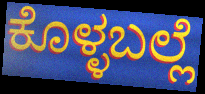
ಕೊಳ್ಳಬಲ್ಲೆ